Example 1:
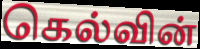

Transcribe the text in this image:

கெல்வின்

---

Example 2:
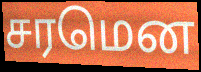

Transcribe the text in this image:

சரமென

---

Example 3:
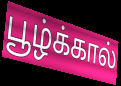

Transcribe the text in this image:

பூழ்க்கால்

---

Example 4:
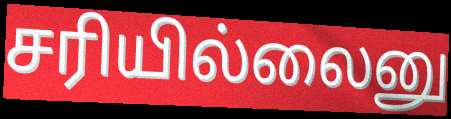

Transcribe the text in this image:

சரியில்லைனு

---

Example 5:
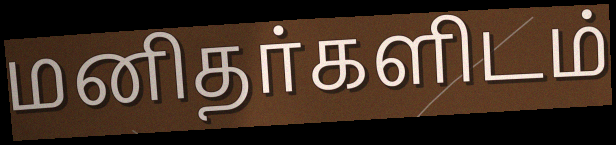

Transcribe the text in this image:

மனிதர்களிடம்